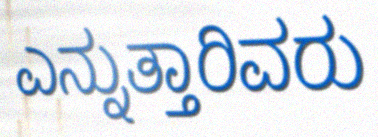
ಎನ್ನುತ್ತಾರಿವರು